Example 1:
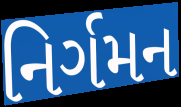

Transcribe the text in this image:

નિર્ગમન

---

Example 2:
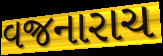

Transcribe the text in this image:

વજ્રનારાચ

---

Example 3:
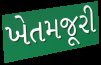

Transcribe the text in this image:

ખેતમજૂરી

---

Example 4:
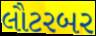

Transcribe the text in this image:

લૌટરબર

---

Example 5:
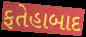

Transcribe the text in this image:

ફતેહાબાદ